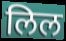
लिल